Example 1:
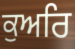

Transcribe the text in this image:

ਕੁਅਰਿ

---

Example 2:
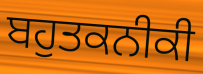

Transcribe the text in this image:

ਬਹੁਤਕਨੀਕੀ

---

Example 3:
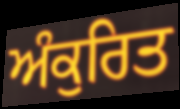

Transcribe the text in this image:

ਅੰਕੁਰਿਤ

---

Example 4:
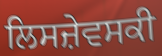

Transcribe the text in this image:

ਲਿਸਜ਼ੇਵਸਕੀ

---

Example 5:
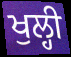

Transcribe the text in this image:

ਖੁਲ੍ਹੀ